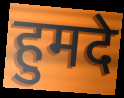
हुमदे